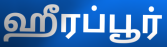
ஹீரப்பூர்